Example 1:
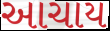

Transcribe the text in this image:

આચાય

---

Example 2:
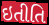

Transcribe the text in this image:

ઇતીતિ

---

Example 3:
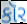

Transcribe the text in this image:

કૉર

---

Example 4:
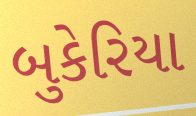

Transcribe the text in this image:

બુકેરિયા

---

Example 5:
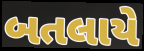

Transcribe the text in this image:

બતલાયે